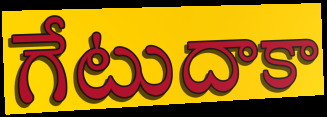
గేటుదాకా